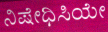
ನಿಷೇಧಿಸಿಯೇ